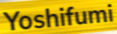
Yoshifumi